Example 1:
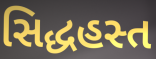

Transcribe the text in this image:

સિદ્ધહસ્ત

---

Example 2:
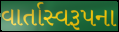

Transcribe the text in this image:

વાર્તાસ્વરૂપના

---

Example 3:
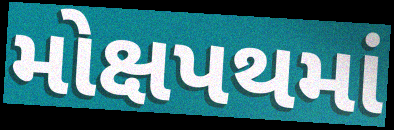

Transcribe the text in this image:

મોક્ષપથમાં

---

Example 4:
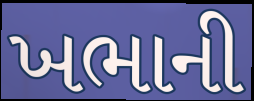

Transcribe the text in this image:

ખભાની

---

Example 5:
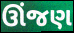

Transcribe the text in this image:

ઊંજણ